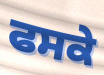
ਫਸਕੇ